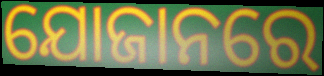
ଯୋଜାନରେ